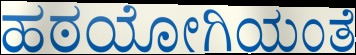
ಹಠಯೋಗಿಯಂತೆ